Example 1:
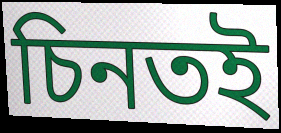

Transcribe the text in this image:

চিনতই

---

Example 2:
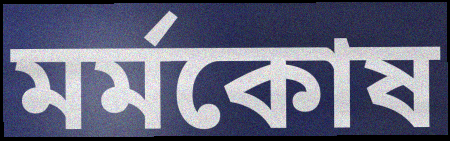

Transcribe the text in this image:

মর্মকোষ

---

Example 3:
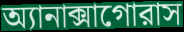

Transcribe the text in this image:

অ্যানাক্সাগোরাস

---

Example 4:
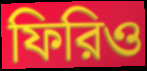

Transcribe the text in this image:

ফিরিও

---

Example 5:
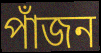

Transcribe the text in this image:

পাঁজন